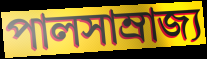
পালসাম্রাজ্য